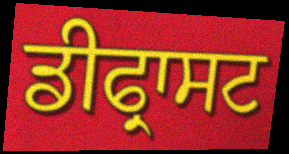
ਡੀਫ੍ਰਾਸਟ